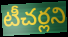
టీచర్లని